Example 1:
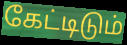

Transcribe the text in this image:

கேட்டிடும்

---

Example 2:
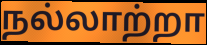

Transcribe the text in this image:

நல்லாற்றா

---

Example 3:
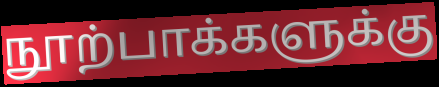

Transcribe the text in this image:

நூற்பாக்களுக்கு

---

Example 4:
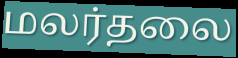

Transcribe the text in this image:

மலர்தலை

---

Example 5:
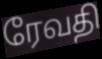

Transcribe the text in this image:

ரேவதி